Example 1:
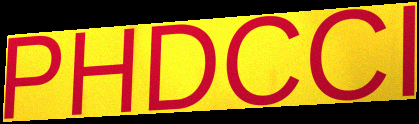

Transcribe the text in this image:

PHDCCI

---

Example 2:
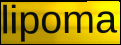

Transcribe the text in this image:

lipoma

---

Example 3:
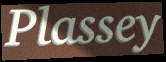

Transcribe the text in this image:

Plassey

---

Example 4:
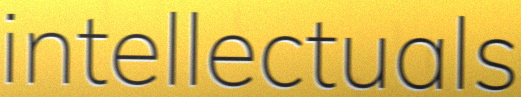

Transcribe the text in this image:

intellectuals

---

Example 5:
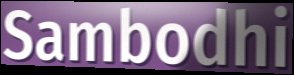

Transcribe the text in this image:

Sambodhi